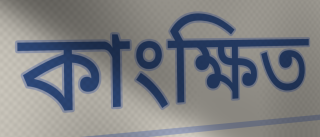
কাংক্ষিত